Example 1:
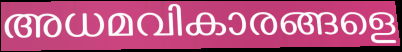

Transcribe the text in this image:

അധമവികാരങ്ങളെ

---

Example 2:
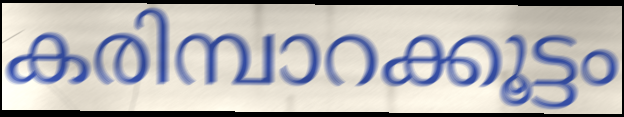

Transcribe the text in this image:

കരിമ്പാറക്കൂട്ടം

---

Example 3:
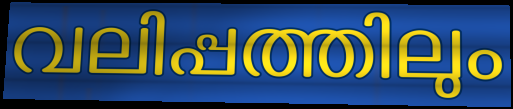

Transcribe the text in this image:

വലിപ്പത്തിലും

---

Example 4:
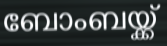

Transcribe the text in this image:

ബോംബയ്ക്ക്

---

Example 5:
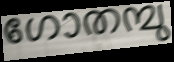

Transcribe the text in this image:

ഗോതമ്പു